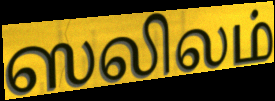
ஸலிலம்